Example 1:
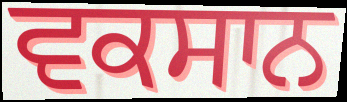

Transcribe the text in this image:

ਵਕਸਾਨ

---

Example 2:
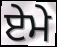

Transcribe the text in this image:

ਏਮੇ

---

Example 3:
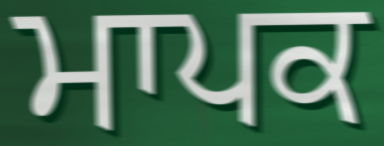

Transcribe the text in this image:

ਮਾਪਕ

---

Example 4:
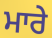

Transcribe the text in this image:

ਮਾਰੇ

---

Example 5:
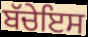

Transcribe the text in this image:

ਬੱਚੇਇਸ